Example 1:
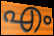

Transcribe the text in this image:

എം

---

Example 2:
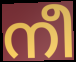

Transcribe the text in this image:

നീ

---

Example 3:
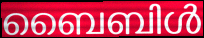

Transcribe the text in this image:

ബൈബിൾ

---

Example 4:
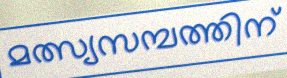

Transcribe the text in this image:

മത്സ്യസമ്പത്തിന്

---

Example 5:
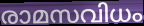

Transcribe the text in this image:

രാമസവിധം